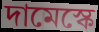
দামেস্কে